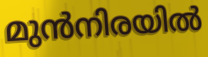
മുൻനിരയിൽ